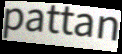
pattan